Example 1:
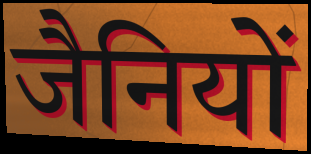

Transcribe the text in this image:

जैनियों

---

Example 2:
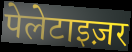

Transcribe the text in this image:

पेलेटाइज़र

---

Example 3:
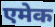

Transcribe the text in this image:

एमेक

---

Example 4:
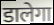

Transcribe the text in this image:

डालेगा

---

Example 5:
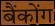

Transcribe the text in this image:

बैंकोंग